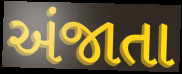
અંજાતા